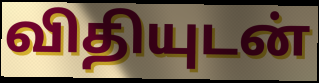
விதியுடன்